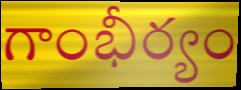
గాంభీర్యం